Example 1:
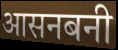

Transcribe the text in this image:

आसनबनी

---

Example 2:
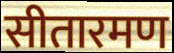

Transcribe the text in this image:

सीतारमण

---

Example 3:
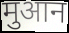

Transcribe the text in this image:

मुआन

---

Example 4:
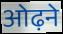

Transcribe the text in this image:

ओढ़ने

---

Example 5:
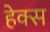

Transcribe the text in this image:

हेक्स